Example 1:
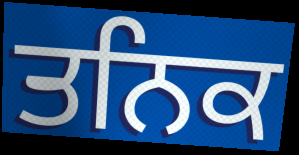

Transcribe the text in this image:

ਤਨਿਕ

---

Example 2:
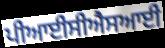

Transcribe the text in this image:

ਪੀਆਈਸੀਐਸਆਈ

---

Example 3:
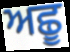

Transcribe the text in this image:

ਅਛੂ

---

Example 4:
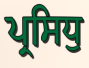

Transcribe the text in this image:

ਪ੍ਰਸਿਧੁ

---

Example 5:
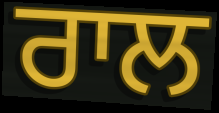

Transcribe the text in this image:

ਰਾਲ